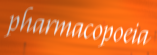
pharmacopoeia